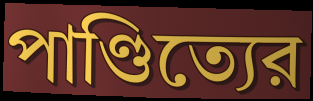
পাণ্ডিত্যের